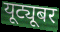
यूट्यूबर